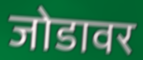
जोडावर